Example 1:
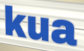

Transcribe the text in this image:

kua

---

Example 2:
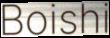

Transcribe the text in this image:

Boishi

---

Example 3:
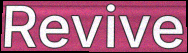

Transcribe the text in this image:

Revive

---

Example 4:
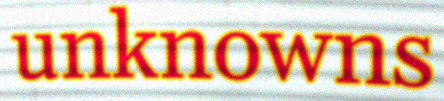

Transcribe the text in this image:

unknowns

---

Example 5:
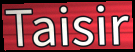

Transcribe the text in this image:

Taisir